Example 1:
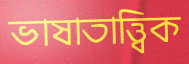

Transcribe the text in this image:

ভাষাতাত্ত্বিক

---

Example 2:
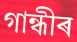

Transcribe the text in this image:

গান্ধীৰ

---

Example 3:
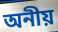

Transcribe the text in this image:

অনীয়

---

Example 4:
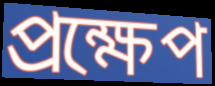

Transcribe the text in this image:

প্ৰক্ষেপ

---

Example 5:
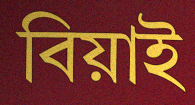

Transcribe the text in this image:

বিয়াই